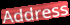
Address